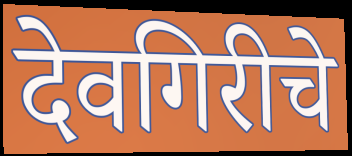
देवगिरीचे